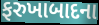
ફરુખાબાદના